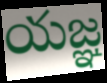
యజ్ఞ